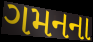
ગમનના